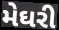
મેઘરી